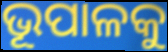
ଭୂପାଳକୁ